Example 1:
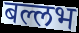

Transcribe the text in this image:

बल्लभ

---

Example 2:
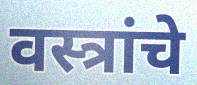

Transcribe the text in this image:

वस्त्रांचे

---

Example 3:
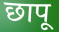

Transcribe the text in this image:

छापू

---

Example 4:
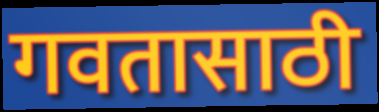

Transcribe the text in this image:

गवतासाठी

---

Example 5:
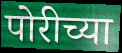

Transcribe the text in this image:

पोरीच्या